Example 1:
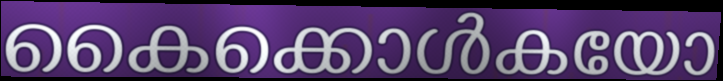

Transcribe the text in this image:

കൈക്കൊൾകയോ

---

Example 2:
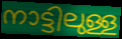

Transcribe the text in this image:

നാട്ടിലുള്ള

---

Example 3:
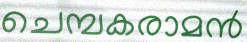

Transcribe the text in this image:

ചെമ്പകരാമൻ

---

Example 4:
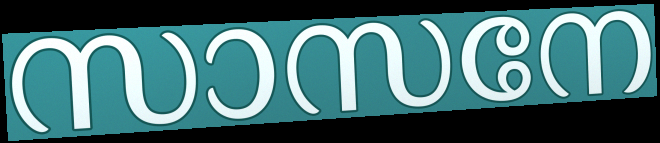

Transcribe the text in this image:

സാസനേ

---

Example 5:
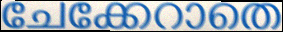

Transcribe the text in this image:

ചേക്കേറാതെ